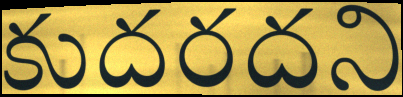
కుదరదని